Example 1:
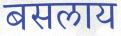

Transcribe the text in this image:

बसलाय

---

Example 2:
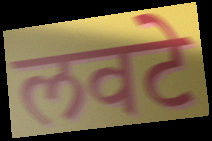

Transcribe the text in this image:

लवटे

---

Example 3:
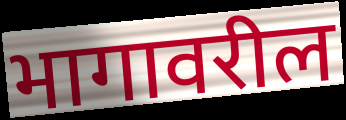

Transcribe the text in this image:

भागावरील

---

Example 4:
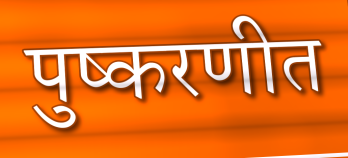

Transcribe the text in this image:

पुष्करणीत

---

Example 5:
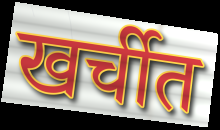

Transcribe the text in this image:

खर्चीत